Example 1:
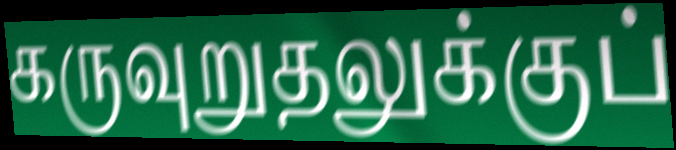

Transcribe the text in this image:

கருவுறுதலுக்குப்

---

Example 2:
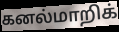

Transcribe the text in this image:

கனல்மாறிக்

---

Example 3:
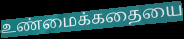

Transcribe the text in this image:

உண்மைக்கதையை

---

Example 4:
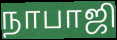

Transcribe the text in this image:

நாபாஜி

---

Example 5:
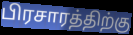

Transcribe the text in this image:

பிரசாரத்திற்கு